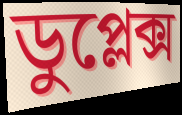
ডুপ্লেক্স